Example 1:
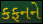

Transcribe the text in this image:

કફનને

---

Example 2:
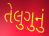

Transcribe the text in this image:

તેલુગુનું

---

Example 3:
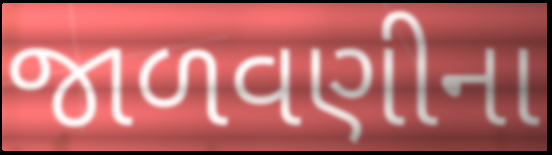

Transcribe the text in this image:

જાળવણીના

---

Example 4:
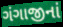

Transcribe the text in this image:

ગંગાજીનાં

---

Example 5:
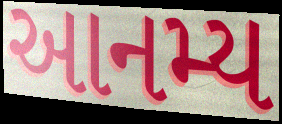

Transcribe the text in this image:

આનમ્ય